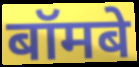
बॉमबे